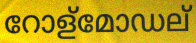
റോള്മോഡല്